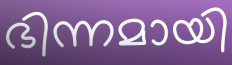
ഭിന്നമായി